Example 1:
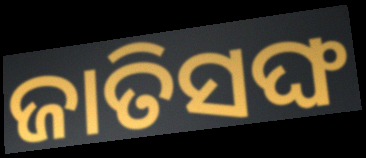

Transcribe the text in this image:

ଜାତିସଙ୍ଘ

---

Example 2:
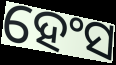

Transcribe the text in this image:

ହେଂସ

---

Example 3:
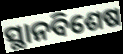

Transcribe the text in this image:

ସ୍ଥାନବିଶେଷ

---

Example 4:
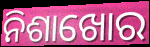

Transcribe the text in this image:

ନିଶାଖୋର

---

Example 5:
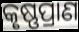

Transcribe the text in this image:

କୃଷ୍ଣପ୍ରାଣ